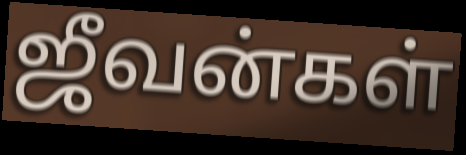
ஜீவன்கள்